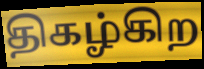
திகழ்கிற